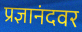
प्रज्ञानंदवर